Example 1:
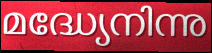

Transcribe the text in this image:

മദ്ധ്യേനിന്നു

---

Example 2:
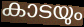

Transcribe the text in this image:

കാടയും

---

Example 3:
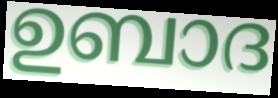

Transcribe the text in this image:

ഉബാദ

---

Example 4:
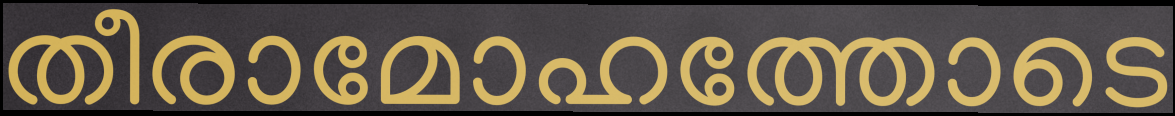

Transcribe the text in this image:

തീരാമോഹത്തോടെ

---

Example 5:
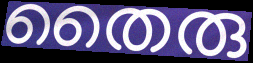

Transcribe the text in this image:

തൈരു